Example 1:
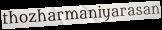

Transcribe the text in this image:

thozharmaniyarasan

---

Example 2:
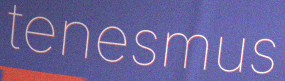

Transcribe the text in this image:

tenesmus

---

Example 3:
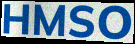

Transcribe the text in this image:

HMSO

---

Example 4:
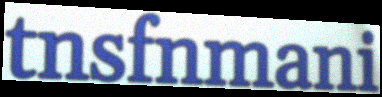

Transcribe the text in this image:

tnsfnmani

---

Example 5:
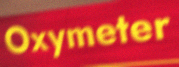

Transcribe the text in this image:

Oxymeter